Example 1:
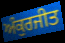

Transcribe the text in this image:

ਅੰਕੁਰਜੀਤ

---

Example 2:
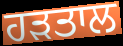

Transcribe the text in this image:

ਹੜਤਾਲ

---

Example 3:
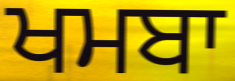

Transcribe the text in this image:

ਖਮਬਾ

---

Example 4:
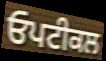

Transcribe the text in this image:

ਓਪਟੀਕਲ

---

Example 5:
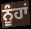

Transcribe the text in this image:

ਨੂੰਹਾਂ